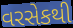
વરસેકથી